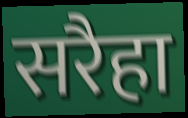
सरैहा